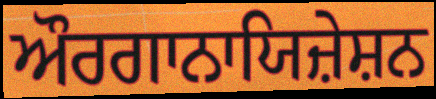
ਔਰਗਾਨਾਯਿਜ਼ੇਸ਼ਨ